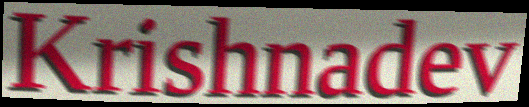
Krishnadev